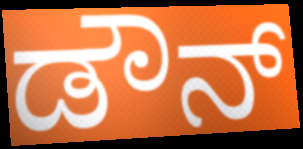
ಡೌನ್